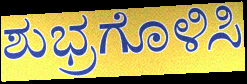
ಶುಭ್ರಗೊಳಿಸಿ